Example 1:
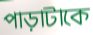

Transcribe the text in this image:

পাড়াটাকে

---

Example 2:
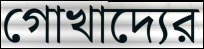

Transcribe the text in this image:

গোখাদ্যের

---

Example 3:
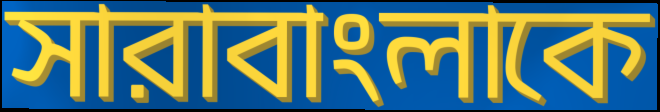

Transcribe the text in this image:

সারাবাংলাকে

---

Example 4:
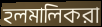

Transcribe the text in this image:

হলমালিকরা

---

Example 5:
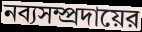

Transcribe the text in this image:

নব্যসম্প্রদায়ের